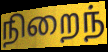
நிறைந்